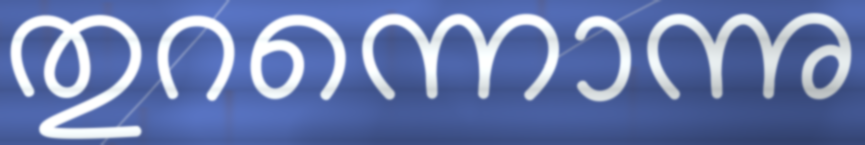
തുറന്നൊന്നു